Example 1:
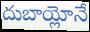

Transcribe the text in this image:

దుబాయ్లోనే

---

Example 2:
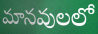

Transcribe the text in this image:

మానవులలో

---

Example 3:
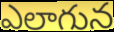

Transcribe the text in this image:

ఎలాగున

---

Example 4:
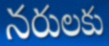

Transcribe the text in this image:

నరులకు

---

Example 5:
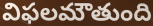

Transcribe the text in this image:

విఫలమౌతుంది